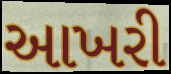
આખરી